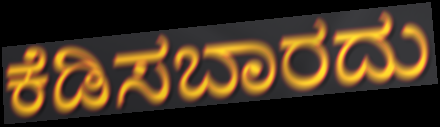
ಕೆಡಿಸಬಾರದು